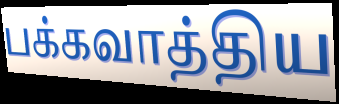
பக்கவாத்திய